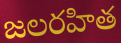
జలరహిత